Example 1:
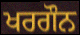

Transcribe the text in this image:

ਖਰਗੌਨ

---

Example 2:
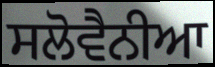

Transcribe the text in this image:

ਸਲੋਵੈਨੀਆ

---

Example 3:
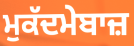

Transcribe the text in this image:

ਮੁਕੱਦਮੇਬਾਜ਼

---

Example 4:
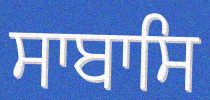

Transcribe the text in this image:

ਸਾਬਾਸਿ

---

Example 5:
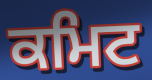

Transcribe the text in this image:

ਕਮਿਟ